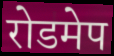
रोडमेप